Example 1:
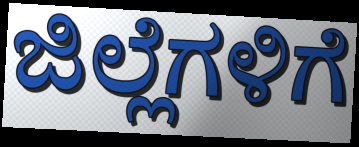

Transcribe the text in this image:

ಜಿಲ್ಲೆಗಳಿಗೆ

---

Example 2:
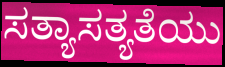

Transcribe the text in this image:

ಸತ್ಯಾಸತ್ಯತೆಯು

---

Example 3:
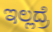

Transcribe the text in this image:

ಇಲ್ಲದ್ರೆ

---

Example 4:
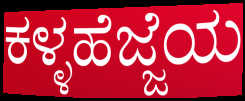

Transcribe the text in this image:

ಕಳ್ಳಹೆಜ್ಜೆಯ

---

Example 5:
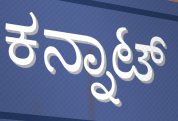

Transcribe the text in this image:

ಕನ್ನಾಟ್